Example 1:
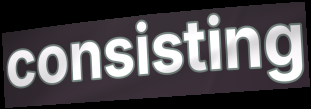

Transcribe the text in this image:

consisting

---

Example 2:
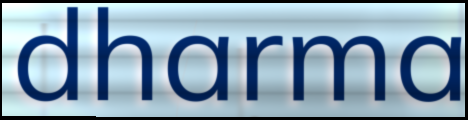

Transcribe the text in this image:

dharma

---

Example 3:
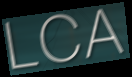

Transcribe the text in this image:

LCA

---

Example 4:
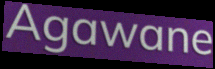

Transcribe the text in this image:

Agawane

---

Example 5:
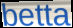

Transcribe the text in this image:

betta